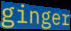
ginger